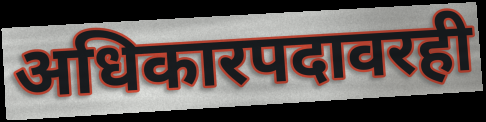
अधिकारपदावरही